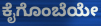
ಕೈಗೊಂಬೆಯೇ